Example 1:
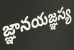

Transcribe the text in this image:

జ్ఞానయజ్ఞస్య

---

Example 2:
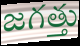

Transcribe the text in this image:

జగత్తు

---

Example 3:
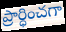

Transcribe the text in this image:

ప్రార్ధించగా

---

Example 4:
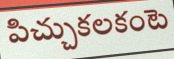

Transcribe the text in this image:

పిచ్చుకలకంటె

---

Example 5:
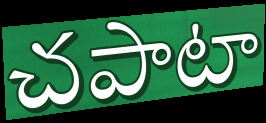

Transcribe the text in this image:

చపాటా